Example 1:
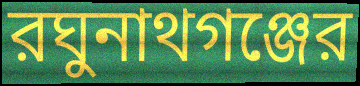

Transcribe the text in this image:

রঘুনাথগঞ্জের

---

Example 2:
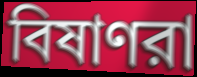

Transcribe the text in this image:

বিষাণরা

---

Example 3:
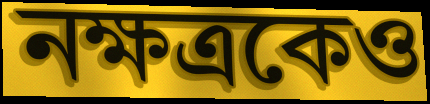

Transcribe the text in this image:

নক্ষত্রকেও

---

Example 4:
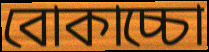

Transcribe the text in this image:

বোকাচ্চো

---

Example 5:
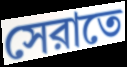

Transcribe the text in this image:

সেরাতে